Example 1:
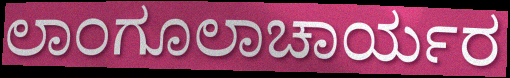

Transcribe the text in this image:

ಲಾಂಗೂಲಾಚಾರ್ಯರ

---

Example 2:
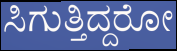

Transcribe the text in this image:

ಸಿಗುತ್ತಿದ್ದರೋ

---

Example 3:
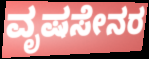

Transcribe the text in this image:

ವೃಷಸೇನರ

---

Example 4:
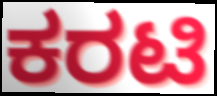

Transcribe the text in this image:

ಕರಟಿ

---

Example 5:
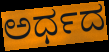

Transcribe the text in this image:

ಅರ್ಧದ